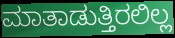
ಮಾತಾಡುತ್ತಿರಲಿಲ್ಲ